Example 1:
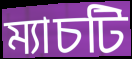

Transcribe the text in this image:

ম্যাচটি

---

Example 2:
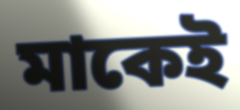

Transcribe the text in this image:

মাকেই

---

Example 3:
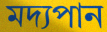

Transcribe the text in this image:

মদ্যপান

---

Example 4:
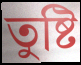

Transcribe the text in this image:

তুষ্টি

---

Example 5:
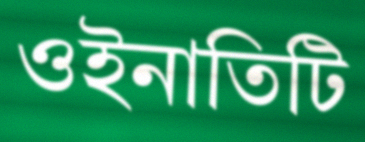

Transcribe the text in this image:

ওইনাতিটি